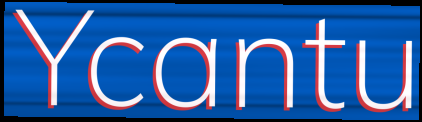
Ycantu